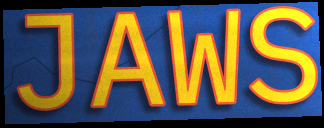
JAWS